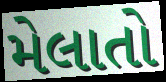
મેલાતો